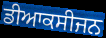
ਡੀਆਕਸੀਜਨ